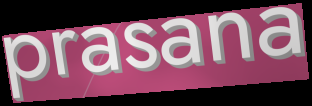
prasana